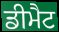
ਡੀਮੈਟ